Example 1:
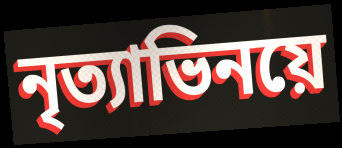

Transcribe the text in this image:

নৃত্যাভিনয়ে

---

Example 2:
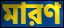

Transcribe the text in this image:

মারণ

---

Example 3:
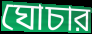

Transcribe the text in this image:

ঘোচার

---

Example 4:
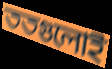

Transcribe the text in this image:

ততগুলোই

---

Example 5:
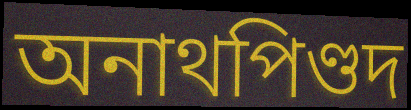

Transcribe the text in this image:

অনাথপিণ্ডদ